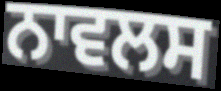
ਨਾਵਲਸ